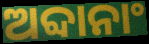
ଅବ୍ଦାନାଂ